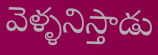
వెళ్ళనిస్తాడు